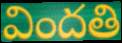
విందతి